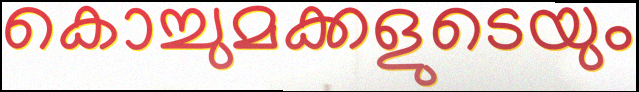
കൊച്ചുമക്കളുടെയും